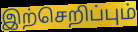
இற்செறிப்பும்